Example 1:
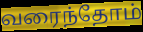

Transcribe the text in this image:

வரைந்தோம்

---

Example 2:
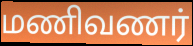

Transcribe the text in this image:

மணிவணர்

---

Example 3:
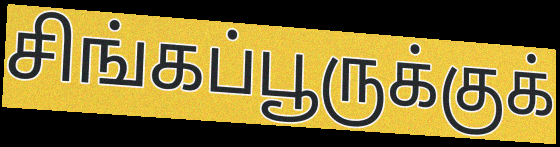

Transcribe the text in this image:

சிங்கப்பூருக்குக்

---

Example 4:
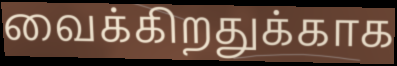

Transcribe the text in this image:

வைக்கிறதுக்காக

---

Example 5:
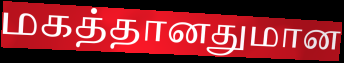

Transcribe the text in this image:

மகத்தானதுமான